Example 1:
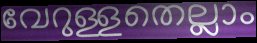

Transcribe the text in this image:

വേറുള്ളതെല്ലാം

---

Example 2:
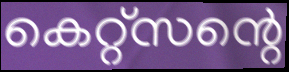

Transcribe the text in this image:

കെറ്റ്സന്റെ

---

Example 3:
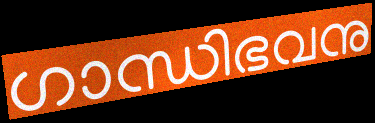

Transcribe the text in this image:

ഗാന്ധിഭവനു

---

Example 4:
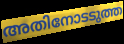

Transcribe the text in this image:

അതിനോടടുത്ത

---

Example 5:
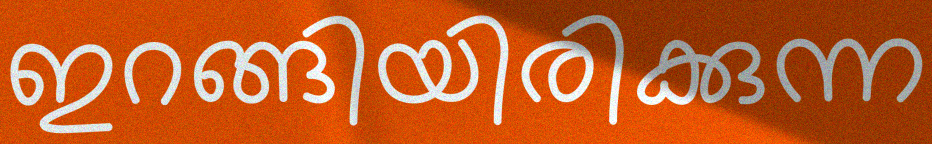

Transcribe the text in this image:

ഇറങ്ങിയിരിക്കുന്ന